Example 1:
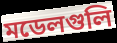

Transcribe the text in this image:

মডেলগুলি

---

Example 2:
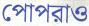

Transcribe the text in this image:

পোপরাও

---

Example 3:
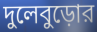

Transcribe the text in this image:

দুলেবুড়োর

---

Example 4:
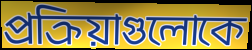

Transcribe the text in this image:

প্রক্রিয়াগুলোকে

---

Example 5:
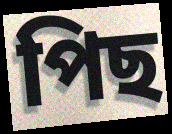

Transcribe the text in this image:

পিছ